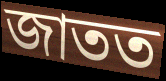
জাতত